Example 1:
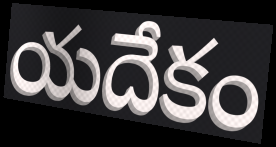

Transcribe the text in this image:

యదేకం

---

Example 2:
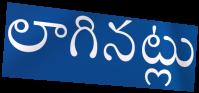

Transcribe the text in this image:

లాగినట్లు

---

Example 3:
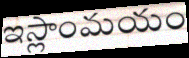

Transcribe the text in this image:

ఇస్లాంమయం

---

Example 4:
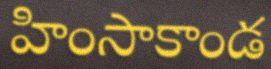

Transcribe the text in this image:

హింసాకాండ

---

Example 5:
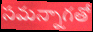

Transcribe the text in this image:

సమన్నాగతో